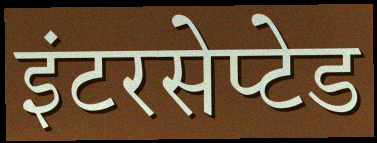
इंटरसेप्टेड